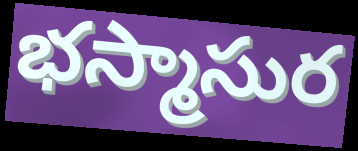
భస్మాసుర